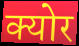
क्योर